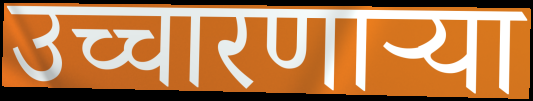
उच्चारणाऱ्या